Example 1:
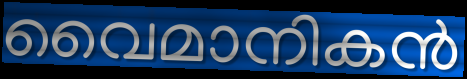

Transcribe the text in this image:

വൈമാനികൻ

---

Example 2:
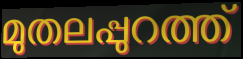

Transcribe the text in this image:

മുതലപ്പുറത്ത്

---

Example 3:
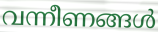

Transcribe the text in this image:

വന്നീണങ്ങൾ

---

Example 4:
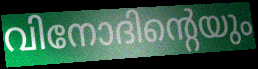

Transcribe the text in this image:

വിനോദിന്റെയും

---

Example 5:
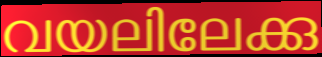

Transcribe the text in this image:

വയലിലേക്കു